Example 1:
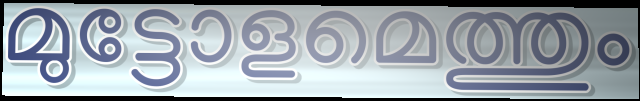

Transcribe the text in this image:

മുട്ടോളമെത്തും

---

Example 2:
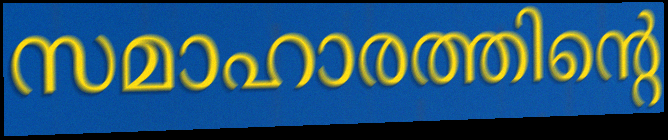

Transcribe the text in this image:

സമാഹാരത്തിന്റെ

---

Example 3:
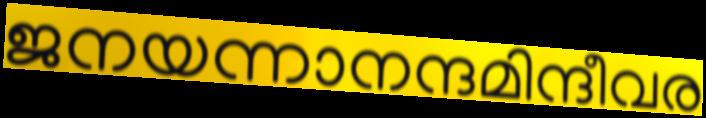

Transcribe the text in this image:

ജനയന്നാനന്ദമിന്ദീവര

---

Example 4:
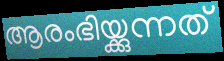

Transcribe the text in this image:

ആരംഭിയ്ക്കുന്നത്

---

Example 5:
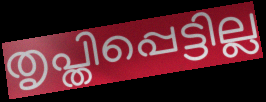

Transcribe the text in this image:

തൃപ്തിപ്പെട്ടില്ല